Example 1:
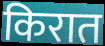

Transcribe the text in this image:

किरात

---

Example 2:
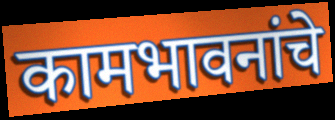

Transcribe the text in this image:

कामभावनांचे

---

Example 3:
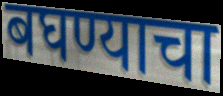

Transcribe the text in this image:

बघण्याचा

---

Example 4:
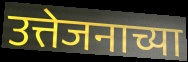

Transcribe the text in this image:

उत्तेजनाच्या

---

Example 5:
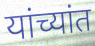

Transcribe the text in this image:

यांच्यांत